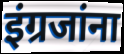
इंग्रजांना